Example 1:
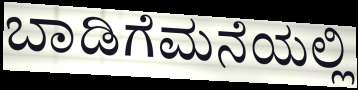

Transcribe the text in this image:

ಬಾಡಿಗೆಮನೆಯಲ್ಲಿ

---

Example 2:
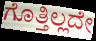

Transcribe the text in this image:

ಗೊತ್ತಿಲ್ಲದೇ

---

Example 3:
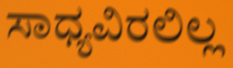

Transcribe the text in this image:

ಸಾಧ್ಯವಿರಲಿಲ್ಲ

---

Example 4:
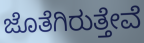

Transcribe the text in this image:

ಜೊತೆಗಿರುತ್ತೇವೆ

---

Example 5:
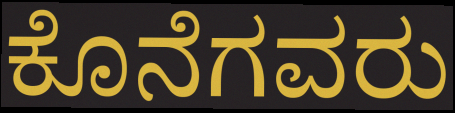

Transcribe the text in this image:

ಕೊನೆಗವರು